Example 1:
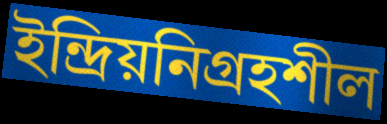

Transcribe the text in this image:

ইন্দ্রিয়নিগ্রহশীল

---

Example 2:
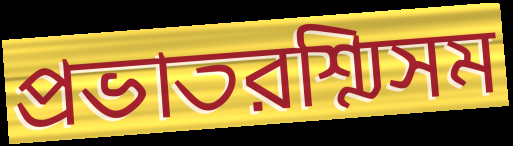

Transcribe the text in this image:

প্রভাতরশ্মিসম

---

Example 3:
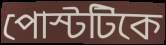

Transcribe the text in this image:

পোস্টটিকে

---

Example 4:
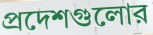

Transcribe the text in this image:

প্রদেশগুলোর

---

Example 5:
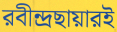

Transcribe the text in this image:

রবীন্দ্রছায়ারই